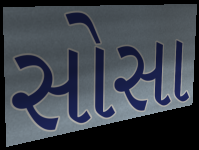
સોસા